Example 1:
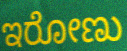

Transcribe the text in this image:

ಇರೋಣು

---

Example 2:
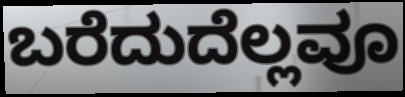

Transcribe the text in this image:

ಬರೆದುದೆಲ್ಲವೂ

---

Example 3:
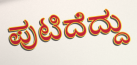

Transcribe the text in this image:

ಪುಟಿದೆದ್ದು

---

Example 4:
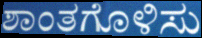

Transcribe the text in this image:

ಶಾಂತಗೊಳಿಸು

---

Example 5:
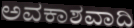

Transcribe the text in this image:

ಅವಕಾಶವಾದಿ